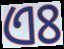
ଏଃ